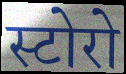
स्टोरो